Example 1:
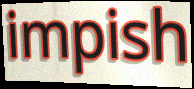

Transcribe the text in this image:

impish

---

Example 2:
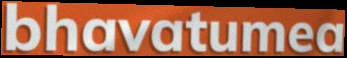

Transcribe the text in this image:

bhavatumea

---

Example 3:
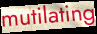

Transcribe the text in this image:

mutilating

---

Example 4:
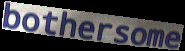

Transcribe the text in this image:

bothersome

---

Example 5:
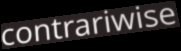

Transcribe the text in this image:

contrariwise